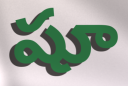
షూ